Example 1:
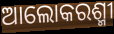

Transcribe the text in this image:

ଆଲୋକରଶ୍ମୀ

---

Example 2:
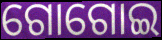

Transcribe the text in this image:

ଗୋଗୋଇ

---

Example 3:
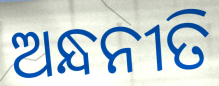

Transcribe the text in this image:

ଅନ୍ଧନୀତି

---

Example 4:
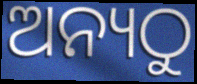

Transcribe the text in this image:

ଅନ୍ୟଠୁ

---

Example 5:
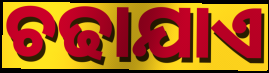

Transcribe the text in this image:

ଚଢାଯାଏ